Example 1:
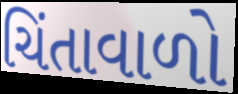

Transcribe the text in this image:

ચિંતાવાળો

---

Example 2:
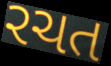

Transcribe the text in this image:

રચત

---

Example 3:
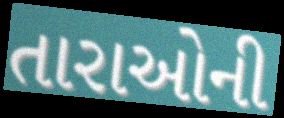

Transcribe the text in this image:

તારાઓની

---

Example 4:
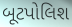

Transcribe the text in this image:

બૂટપોલિશ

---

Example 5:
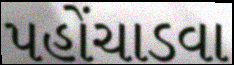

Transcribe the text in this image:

પહોંચાડવા